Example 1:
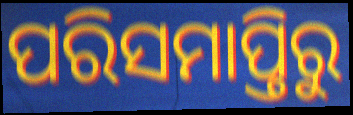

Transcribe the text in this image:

ପରିସମାପ୍ତିରୁ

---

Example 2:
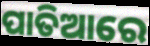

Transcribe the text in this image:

ପାତିଆରେ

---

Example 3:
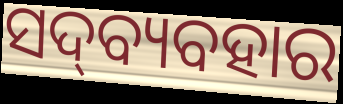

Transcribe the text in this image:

ସଦ୍‍ବ୍ୟବହାର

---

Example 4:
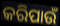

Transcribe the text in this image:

କରିପାଉଁ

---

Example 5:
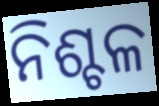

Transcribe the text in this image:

ନିଶ୍ଚଳ